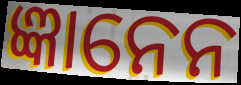
ଜ୍ଞାନେନ